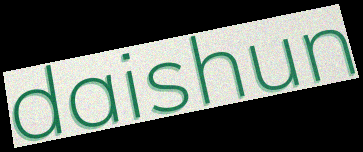
daishun